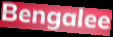
Bengalee